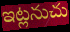
ఇట్లనుచు